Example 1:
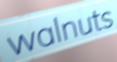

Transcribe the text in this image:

walnuts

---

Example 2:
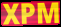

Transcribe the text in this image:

XPM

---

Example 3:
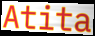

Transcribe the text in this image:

Atita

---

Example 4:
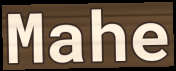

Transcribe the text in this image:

Mahe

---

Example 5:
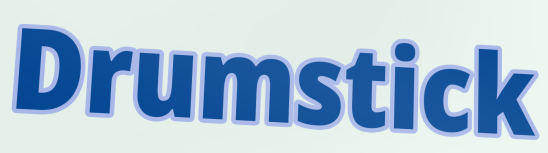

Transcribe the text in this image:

Drumstick